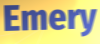
Emery